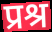
प्रश्र